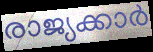
രാജ്യക്കാർ